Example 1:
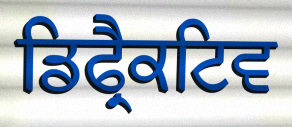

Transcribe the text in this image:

ਡਿਫ੍ਰੈਕਟਿਵ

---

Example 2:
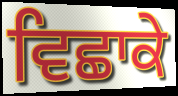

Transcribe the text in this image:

ਵਿਛਾਕੇ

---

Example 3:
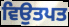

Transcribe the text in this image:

ਵਿਉਤਪਤ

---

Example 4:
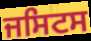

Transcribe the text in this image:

ਜਸਿਟਸ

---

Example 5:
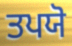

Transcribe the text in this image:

ਤਪਯੋ